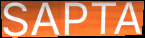
SAPTA